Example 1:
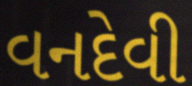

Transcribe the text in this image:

વનદેવી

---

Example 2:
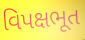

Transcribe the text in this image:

વિપક્ષભૂત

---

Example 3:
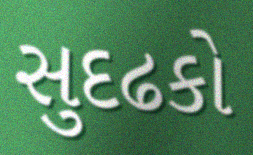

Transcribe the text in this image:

સુદઢકો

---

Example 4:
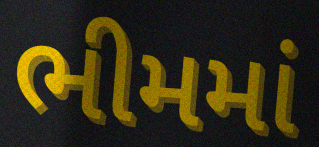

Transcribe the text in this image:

ભીમમાં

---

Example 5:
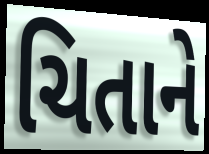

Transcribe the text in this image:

ચિતાને